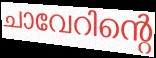
ചാവേറിന്റെ